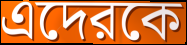
এদেরকে